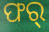
ଫର୍